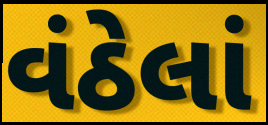
વંઠેલાં